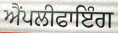
ਐਂਪਲੀਫਾਇੰਗ